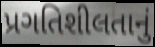
પ્રગતિશીલતાનું